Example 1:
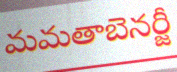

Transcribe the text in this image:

మమతాబెనర్జీ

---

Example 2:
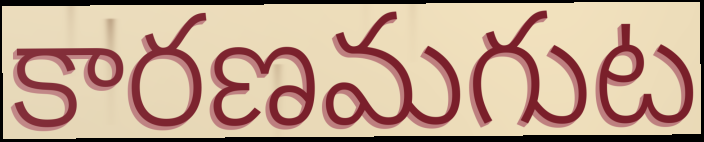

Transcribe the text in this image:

కారణమగుట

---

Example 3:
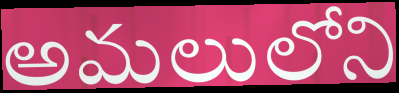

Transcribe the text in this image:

అమలులోని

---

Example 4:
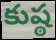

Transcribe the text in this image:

కుష్ఠ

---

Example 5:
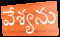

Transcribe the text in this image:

వేశ్యను